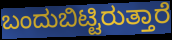
ಬಂದುಬಿಟ್ಟಿರುತ್ತಾರೆ